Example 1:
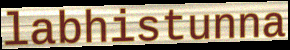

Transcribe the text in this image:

labhistunna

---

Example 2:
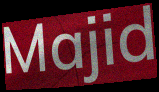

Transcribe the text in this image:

Majid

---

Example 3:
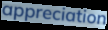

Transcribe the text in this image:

appreciation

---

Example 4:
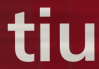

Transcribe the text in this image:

tiu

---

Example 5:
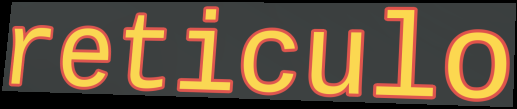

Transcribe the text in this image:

reticulo